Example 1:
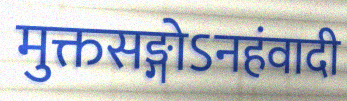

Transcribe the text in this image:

मुक्तसङ्गोऽनहंवादी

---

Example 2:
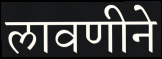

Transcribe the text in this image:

लावणीने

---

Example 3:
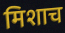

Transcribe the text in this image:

मिशाच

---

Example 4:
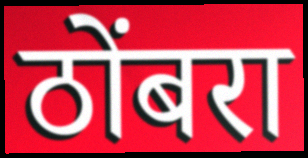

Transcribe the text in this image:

ठोंबरा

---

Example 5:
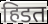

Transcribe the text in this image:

हिडत